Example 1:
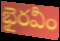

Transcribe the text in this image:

భైరవీం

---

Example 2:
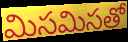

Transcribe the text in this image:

మిసమిసతో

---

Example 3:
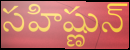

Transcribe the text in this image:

సహిష్ణున్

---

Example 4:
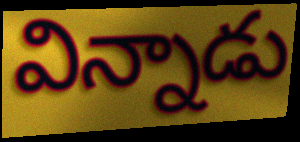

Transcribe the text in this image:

విన్నాడు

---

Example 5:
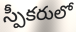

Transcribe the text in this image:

స్పీకరులో